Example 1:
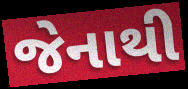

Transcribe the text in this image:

જેનાથી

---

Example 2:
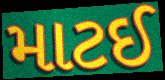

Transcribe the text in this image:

માટઈ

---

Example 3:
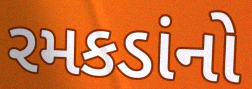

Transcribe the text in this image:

રમકડાંનો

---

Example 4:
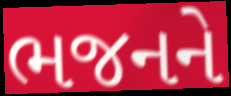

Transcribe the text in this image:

ભજનને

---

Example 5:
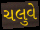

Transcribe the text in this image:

ચલુવે